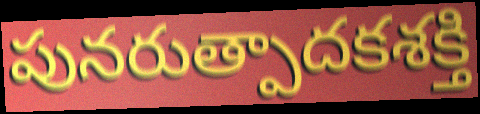
పునరుత్పాదకశక్తి